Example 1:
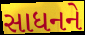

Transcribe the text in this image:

સાધનને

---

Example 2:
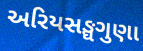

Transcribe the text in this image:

અરિયસઙ્ઘગુણા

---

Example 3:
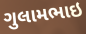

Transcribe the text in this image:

ગુલામભાઇ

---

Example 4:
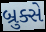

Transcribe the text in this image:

બ્રુક્સે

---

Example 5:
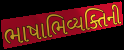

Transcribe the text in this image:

ભાષાભિવ્યક્તિની